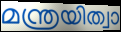
മന്ത്രയിത്വാ